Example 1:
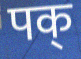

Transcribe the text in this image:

पक्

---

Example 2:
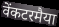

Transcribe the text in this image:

वेंकटरमैया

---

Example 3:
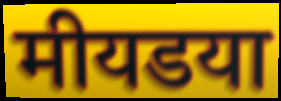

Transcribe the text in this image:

मीयडया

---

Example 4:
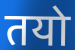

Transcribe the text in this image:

तयो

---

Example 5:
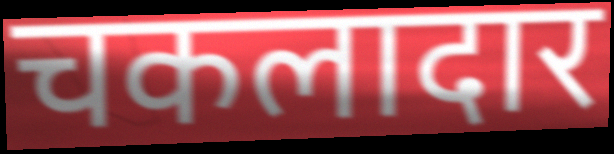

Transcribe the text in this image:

चकलादार